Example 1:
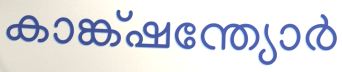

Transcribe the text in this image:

കാങ്ക്ഷന്ത്യോർ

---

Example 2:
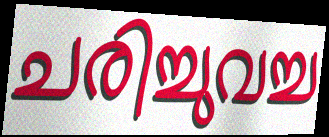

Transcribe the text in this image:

ചരിച്ചുവച്ച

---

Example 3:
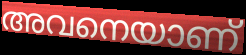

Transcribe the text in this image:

അവനെയാണ്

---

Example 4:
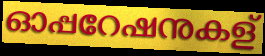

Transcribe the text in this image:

ഓപ്പറേഷനുകള്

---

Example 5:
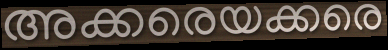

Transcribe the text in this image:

അക്കരെയക്കരെ